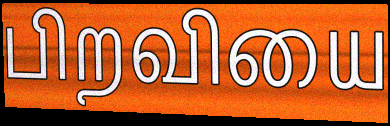
பிறவியை